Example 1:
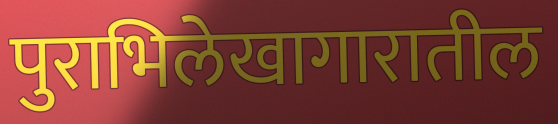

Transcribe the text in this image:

पुराभिलेखागारातील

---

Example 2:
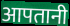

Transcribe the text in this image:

आपतानी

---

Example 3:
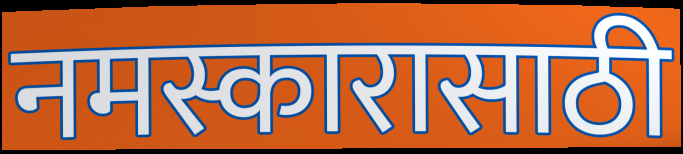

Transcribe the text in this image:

नमस्कारासाठी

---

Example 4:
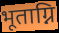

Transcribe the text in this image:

भूताग्नि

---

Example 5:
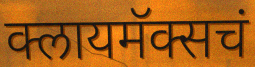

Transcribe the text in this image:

क्लायमॅक्सचं